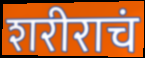
शरीराचं